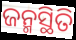
ଜନ୍ମସ୍ଥିତି